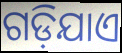
ଗଡ଼ିଯାଏ